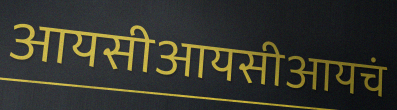
आयसीआयसीआयचं